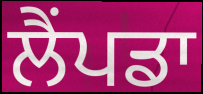
ਲੈਂਪਡਾ